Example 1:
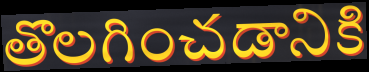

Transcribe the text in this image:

తొలగించడానికి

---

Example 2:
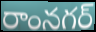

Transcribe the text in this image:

రాంనగర్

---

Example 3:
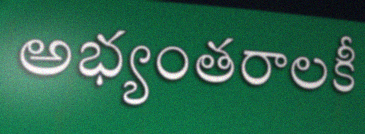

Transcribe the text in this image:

అభ్యంతరాలకీ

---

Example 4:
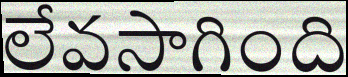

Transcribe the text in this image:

లేవసాగింది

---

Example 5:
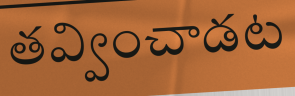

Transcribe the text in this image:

తవ్వించాడట